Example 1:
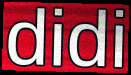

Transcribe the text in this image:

didi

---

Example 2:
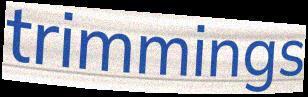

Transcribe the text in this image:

trimmings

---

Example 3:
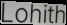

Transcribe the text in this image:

Lohith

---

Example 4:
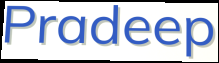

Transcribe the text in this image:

Pradeep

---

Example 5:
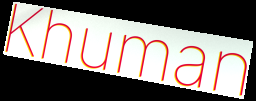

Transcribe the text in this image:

Khuman